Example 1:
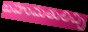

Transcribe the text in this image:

బహుమతులిచ్చి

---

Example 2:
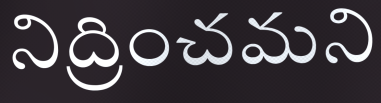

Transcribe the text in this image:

నిద్రించమని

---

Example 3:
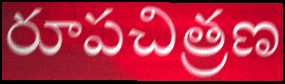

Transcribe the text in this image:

రూపచిత్రణ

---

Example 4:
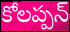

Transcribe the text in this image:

కోలప్పన్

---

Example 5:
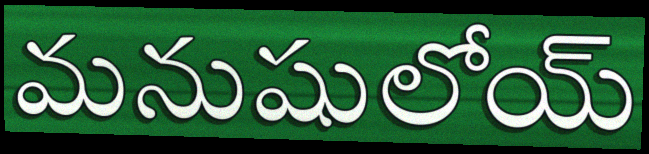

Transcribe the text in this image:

మనుషులోయ్